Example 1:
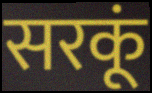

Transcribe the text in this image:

सरकूं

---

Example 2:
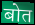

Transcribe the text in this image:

बोत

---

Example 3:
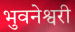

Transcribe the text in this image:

भुवनेश्वरी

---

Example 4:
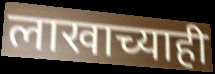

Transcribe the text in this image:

लाखाच्याही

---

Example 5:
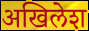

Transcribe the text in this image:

अखिलेश